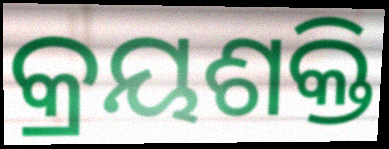
କ୍ରୟଶକ୍ତି